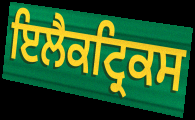
ਇਲੈਕਟ੍ਰਿਕਸ